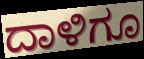
ದಾಳಿಗೂ